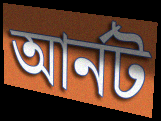
আর্নট